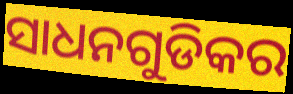
ସାଧନଗୁଡିକର